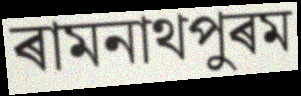
ৰামনাথপুৰম